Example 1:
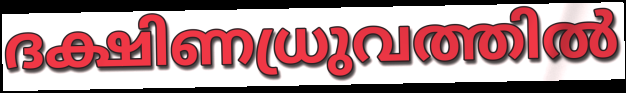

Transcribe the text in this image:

ദക്ഷിണധ്രുവത്തിൽ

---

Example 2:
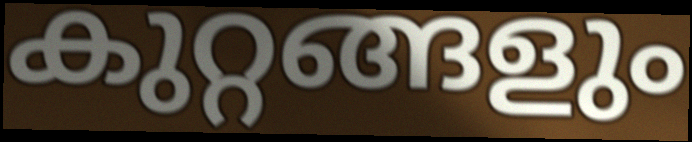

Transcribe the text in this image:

കുറ്റങ്ങളും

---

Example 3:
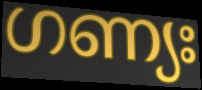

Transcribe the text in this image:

ഗണ്യഃ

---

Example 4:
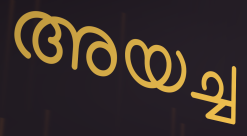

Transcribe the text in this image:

അയച്ച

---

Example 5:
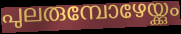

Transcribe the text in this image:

പുലരുമ്പോഴേയ്ക്കും